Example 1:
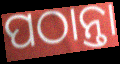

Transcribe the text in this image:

ପଠାନ୍ତା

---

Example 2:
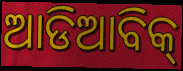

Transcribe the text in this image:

ଆଡିଆବିକ୍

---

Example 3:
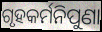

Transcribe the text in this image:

ଗୃହକର୍ମନିପୁଣା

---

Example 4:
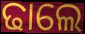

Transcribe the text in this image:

ଢାଲେ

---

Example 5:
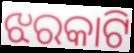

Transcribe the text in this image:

ଝରକାଟି